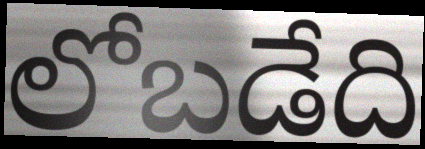
లోబడేది